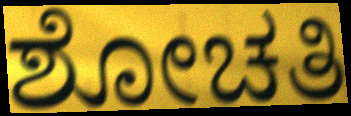
ಶೋಚತಿ